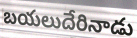
బయలుదేరినాడు